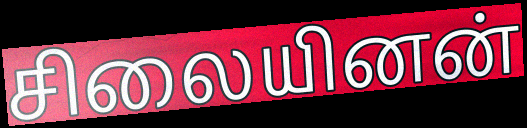
சிலையினன்